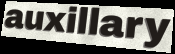
auxillary